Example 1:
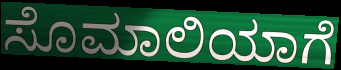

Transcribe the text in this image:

ಸೊಮಾಲಿಯಾಗೆ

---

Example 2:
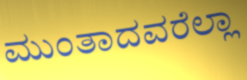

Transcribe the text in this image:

ಮುಂತಾದವರೆಲ್ಲಾ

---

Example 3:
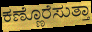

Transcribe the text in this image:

ಕಣ್ಣೊರೆಸುತ್ತಾ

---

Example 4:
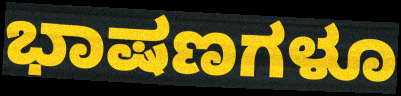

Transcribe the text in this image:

ಭಾಷಣಗಳೂ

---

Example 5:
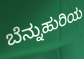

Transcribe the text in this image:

ಬೆನ್ನುಹುರಿಯ